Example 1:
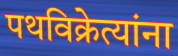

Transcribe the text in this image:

पथविक्रेत्यांना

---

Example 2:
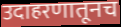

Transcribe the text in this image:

उदाहरणातूनच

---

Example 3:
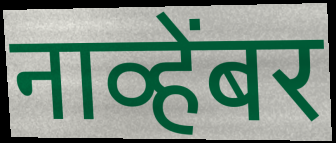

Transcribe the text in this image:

नाव्हेंबर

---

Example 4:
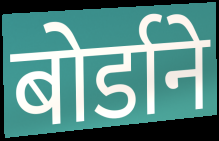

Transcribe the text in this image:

बोर्डाने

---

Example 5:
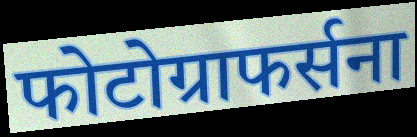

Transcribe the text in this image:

फोटोग्राफर्सना